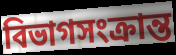
বিভাগসংক্রান্ত